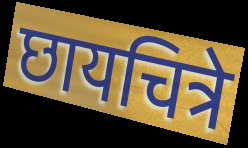
छायचित्रे